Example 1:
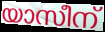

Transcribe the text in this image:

യാസീന്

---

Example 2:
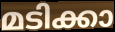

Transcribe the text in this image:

മടിക്കാ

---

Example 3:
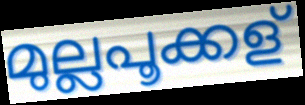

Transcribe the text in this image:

മുല്ലപൂക്കള്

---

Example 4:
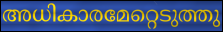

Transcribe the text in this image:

അധികാരമേറ്റെടുത്തു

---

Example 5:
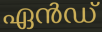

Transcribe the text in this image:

ഏൻഡ്